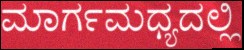
ಮಾರ್ಗಮಧ್ಯದಲ್ಲಿ